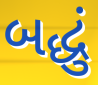
બદ્ધું